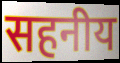
सहनीय